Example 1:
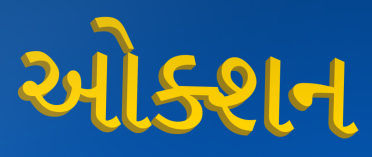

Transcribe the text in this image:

ઓક્શન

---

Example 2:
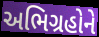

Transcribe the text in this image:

અભિગ્રહોને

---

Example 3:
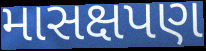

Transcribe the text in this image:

માસક્ષપણ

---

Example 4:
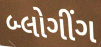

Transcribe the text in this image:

બ્લોગીંગ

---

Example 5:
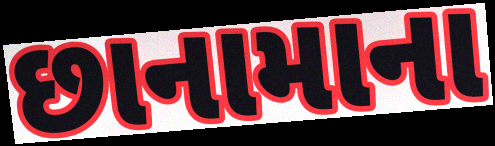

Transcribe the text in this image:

છાનામાના